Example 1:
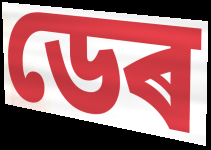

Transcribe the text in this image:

ডেৰ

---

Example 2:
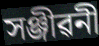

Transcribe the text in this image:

সঞ্জীৱনী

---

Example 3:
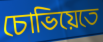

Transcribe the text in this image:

চোভিয়েতে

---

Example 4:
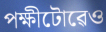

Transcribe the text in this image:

পক্ষীটোৱেও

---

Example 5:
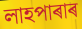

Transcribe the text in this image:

লাহপাৰাৰ